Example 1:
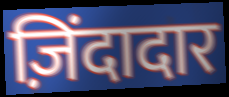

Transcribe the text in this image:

ज़िंदादार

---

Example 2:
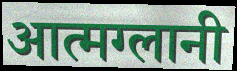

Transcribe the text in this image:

आत्मग्लानी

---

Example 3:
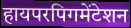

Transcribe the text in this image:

हायपरपिगमेंटेशन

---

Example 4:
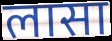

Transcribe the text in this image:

लासा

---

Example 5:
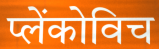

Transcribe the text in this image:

प्लेंकोविच